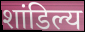
शांडिल्य